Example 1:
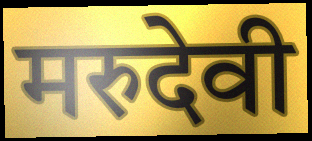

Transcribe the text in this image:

मरुदेवी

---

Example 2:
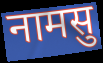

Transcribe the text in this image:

नामसु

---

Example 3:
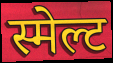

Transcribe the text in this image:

स्मेल्ट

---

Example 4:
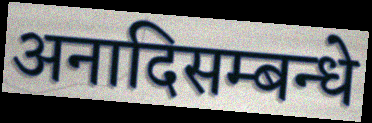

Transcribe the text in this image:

अनादिसम्बन्धे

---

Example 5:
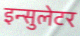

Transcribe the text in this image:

इन्सुलेटर